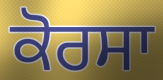
ਕੋਰਸਾ